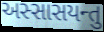
અસ્સાસયન્તુ